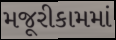
મજૂરીકામમાં